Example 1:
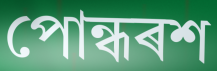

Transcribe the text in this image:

পোন্ধৰশ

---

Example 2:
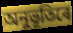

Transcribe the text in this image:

অনুভূতিৰে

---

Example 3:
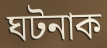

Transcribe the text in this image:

ঘটনাক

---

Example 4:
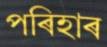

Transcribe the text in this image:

পৰিহাৰ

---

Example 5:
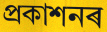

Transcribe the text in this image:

প্ৰকাশনৰ